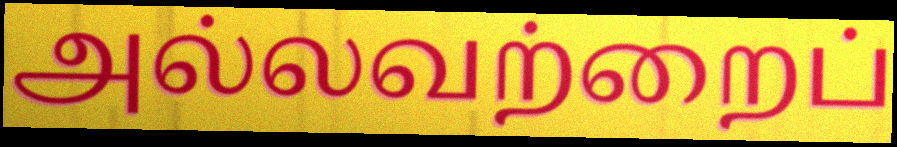
அல்லவற்றைப்